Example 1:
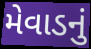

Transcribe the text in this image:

મેવાડનું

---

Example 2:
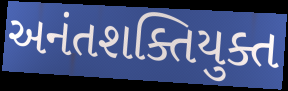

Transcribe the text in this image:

અનંતશક્તિયુક્ત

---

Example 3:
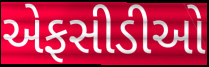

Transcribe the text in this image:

એફસીડીઓ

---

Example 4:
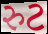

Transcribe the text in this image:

રુટ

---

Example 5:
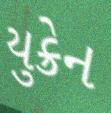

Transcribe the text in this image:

યુક્રેન